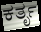
ಕರ್ತೃ